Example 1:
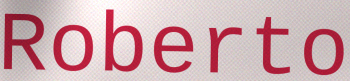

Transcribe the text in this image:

Roberto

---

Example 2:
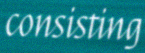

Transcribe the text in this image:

consisting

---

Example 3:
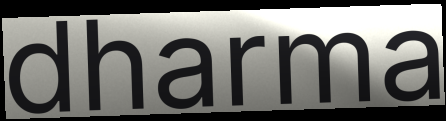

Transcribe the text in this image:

dharma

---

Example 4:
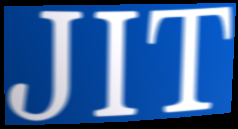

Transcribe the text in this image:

JIT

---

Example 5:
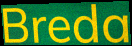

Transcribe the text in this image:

Breda